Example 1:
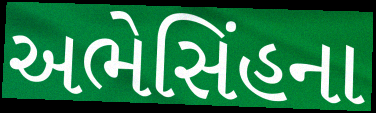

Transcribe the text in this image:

અભેસિંહના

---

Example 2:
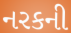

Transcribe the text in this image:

નરકની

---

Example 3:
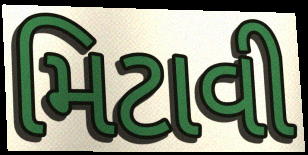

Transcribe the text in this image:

મિટાવી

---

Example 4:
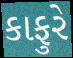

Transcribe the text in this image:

કાફુરે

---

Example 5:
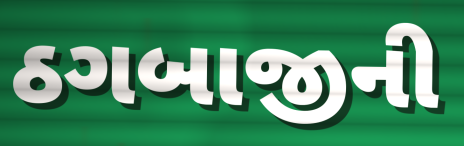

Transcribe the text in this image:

ઠગબાજીની